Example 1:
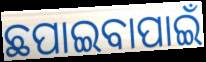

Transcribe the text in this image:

ଛପାଇବାପାଇଁ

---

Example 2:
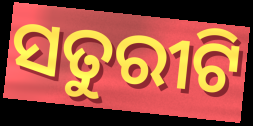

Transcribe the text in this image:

ସତୁରୀଟି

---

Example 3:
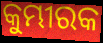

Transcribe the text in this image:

କୁମ୍ଭୀରକ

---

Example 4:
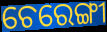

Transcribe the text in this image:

ଚେରେଙ୍ଗୀ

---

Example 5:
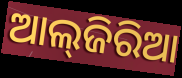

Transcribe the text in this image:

ଆଲ୍‌ଜିରିଆ